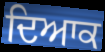
ਦਿਆਕ